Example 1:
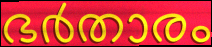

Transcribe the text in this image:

ഭർതാരം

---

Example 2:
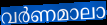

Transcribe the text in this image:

വർണമാലാ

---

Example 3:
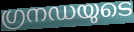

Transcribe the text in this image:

ഗ്രനഡയുടെ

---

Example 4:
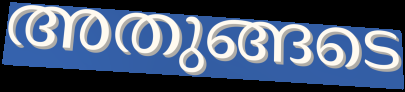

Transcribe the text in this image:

അതുങ്ങടെ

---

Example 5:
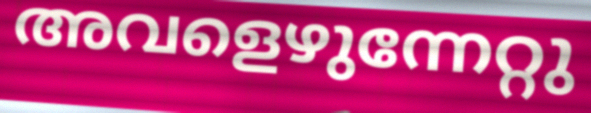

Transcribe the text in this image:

അവളെഴുന്നേറ്റു